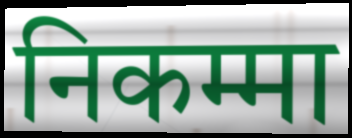
निकम्मा